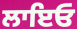
ਲਾਇਓ